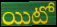
యిటో